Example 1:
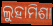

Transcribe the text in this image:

ଲୁହାମିଶା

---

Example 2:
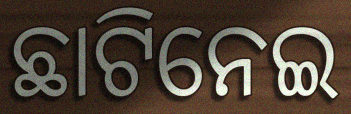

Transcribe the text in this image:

ଛାଟିନେଇ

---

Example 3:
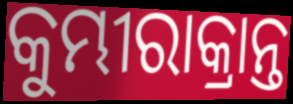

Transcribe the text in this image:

କୁମ୍ଭୀରାକ୍ରାନ୍ତ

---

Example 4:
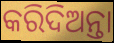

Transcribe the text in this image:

କରିଦିଅନ୍ତା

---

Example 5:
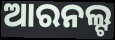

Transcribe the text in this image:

ଆରନଲ୍ଟ